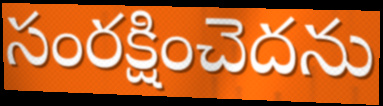
సంరక్షించెదను